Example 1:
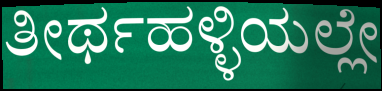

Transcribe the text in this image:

ತೀರ್ಥಹಳ್ಳಿಯಲ್ಲೇ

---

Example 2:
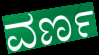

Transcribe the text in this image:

ವರ್ಣ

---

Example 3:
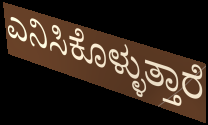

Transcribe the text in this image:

ಎನಿಸಿಕೊಳ್ಳುತ್ತಾರೆ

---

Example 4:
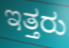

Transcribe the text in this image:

ಇತ್ತರು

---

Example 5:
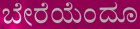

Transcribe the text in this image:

ಬೇರೆಯೆಂದೂ